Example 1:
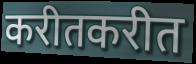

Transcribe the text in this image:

करीतकरीत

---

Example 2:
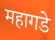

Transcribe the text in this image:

महागडे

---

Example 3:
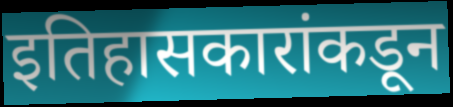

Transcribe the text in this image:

इतिहासकारांकडून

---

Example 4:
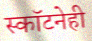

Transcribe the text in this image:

स्कॉटनेही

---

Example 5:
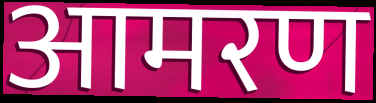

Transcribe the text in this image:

आमरण